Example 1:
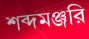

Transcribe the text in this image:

শব্দমঞ্জরি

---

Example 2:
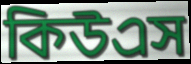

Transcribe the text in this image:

কিউএস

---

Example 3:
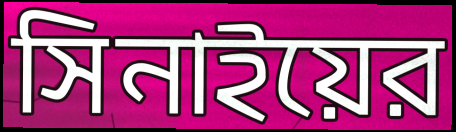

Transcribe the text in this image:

সিনাইয়ের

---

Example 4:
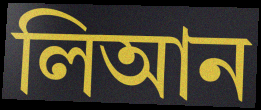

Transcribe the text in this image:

লিআন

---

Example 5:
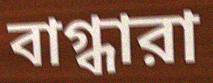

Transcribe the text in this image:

বাগ্ধারা